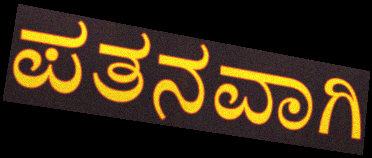
ಪತನವಾಗಿ